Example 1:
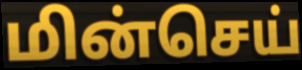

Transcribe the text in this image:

மின்செய்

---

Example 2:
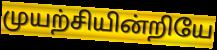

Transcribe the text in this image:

முயற்சியின்றியே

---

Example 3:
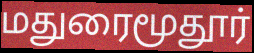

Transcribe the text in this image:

மதுரைமூதூர்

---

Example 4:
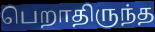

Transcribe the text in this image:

பெறாதிருந்த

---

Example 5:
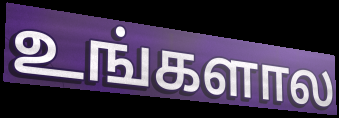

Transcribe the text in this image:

உங்களால